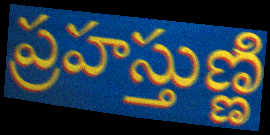
ప్రహస్తుణ్ణి